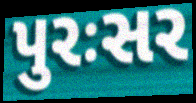
પુરઃસર